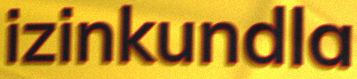
izinkundla